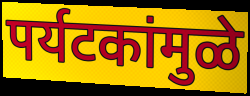
पर्यटकांमुळे